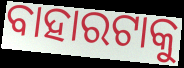
ବାହାରଟାକୁ